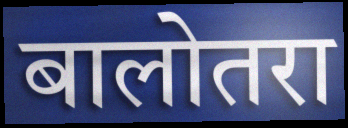
बालोतरा